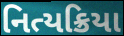
નિત્યક્રિયા